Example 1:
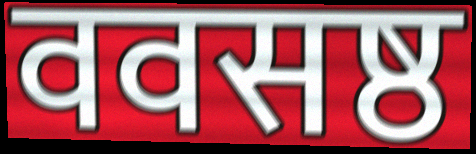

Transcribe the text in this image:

ववसष्ठ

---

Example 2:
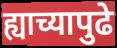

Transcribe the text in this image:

ह्याच्यापुढे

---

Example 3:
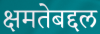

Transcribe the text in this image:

क्षमतेबद्दल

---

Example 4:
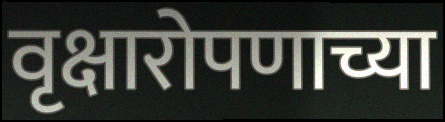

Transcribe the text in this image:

वृक्षारोपणाच्या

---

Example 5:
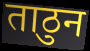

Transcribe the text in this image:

ताठुन